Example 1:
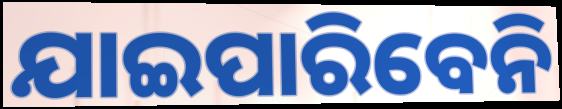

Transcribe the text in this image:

ଯାଇପାରିବେନି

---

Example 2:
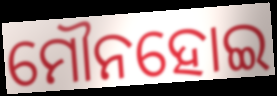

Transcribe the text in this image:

ମୌନହୋଇ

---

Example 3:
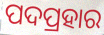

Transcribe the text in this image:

ପଦପ୍ରହାର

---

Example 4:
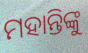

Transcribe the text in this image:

ମହାନ୍ତିଙ୍କୁ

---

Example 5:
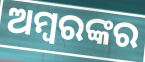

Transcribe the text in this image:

ଅମ୍ବରଙ୍କର